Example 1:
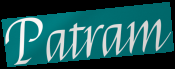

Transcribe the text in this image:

Patram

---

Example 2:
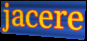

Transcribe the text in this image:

jacere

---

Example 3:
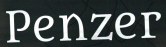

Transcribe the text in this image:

Penzer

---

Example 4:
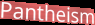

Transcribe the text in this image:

Pantheism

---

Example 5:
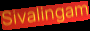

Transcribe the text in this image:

Sivalingam